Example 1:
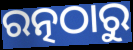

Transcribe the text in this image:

ରତ୍ନଠାରୁ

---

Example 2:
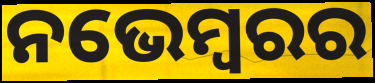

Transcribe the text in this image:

ନଭେମ୍ବରର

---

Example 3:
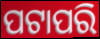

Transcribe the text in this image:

ପଟାପରି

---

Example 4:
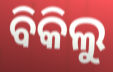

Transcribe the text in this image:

ବିକିଲୁ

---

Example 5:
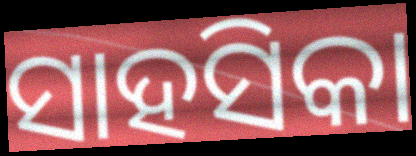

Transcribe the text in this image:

ସାହସିକା